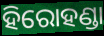
ହିରୋହଣ୍ଡା